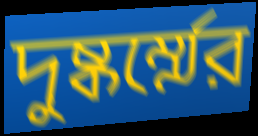
দুষ্কর্ম্মের